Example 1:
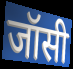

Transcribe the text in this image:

जॉसी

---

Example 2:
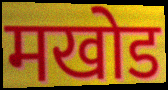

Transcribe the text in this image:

मखोड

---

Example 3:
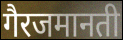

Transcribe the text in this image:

गैरजमानती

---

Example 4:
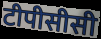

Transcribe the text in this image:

टीपीसीसी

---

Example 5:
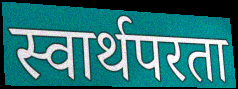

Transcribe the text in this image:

स्वार्थपरता